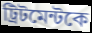
ট্রিটমেন্টকে